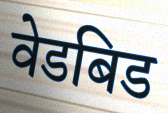
वेडबिड